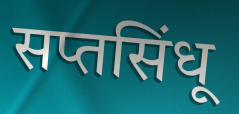
सप्तसिंधू